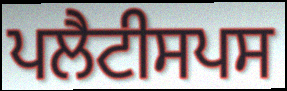
ਪਲੈਟੀਸਪਸ